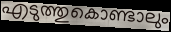
എടുത്തുകൊണ്ടാലും